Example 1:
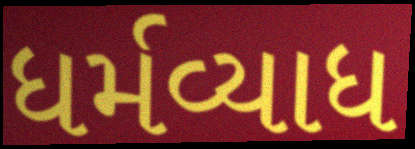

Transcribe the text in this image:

ધર્મવ્યાધ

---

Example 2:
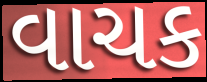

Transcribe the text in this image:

વાચક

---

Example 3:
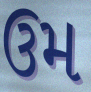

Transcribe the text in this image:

ઉમ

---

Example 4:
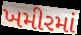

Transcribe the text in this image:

ખમીરમાં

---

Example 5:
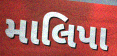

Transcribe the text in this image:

માલિપા